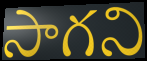
సాగని